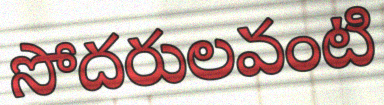
సోదరులవంటి